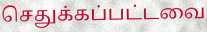
செதுக்கப்பட்டவை